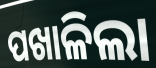
ପଖାଳିଲା